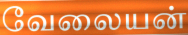
வேலையன்